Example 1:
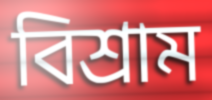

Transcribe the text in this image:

বিশ্রাম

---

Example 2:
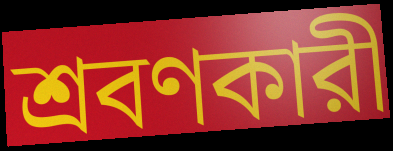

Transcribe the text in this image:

শ্রবণকারী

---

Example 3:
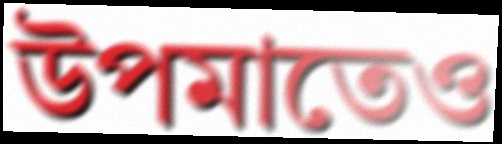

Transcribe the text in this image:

উপমাতেও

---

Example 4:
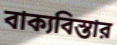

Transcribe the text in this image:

বাক্যবিস্তার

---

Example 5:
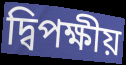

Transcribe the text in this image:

দ্বিপক্ষীয়